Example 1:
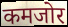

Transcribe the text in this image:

कमजोर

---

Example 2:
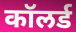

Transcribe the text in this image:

कॉलर्ड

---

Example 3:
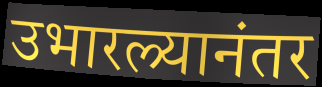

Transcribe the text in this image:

उभारल्यानंतर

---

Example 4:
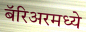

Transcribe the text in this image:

बॅरिअरमध्ये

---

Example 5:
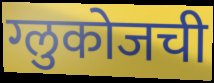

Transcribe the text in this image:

ग्लुकोजची